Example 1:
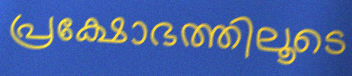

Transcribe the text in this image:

പ്രക്ഷോഭത്തിലൂടെ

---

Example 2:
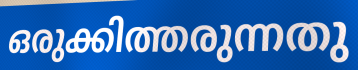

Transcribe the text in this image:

ഒരുക്കിത്തരുന്നതു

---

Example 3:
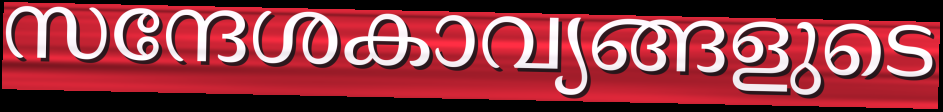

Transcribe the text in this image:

സന്ദേശകാവ്യങ്ങളുടെ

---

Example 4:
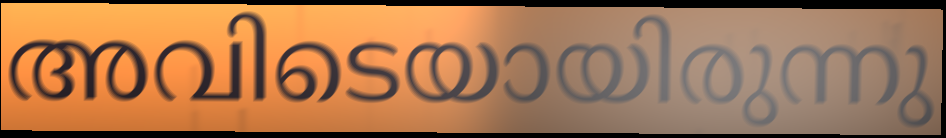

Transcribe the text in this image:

അവിടെയായിരുന്നു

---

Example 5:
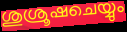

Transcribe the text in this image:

ശുശ്രൂഷചെയ്യും